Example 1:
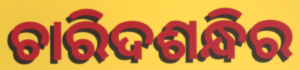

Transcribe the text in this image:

ଚାରିଦଶନ୍ଧିର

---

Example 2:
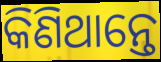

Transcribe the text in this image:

କିଣିଥାନ୍ତେ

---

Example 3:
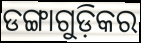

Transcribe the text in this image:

ଡଙ୍ଗାଗୁଡ଼ିକର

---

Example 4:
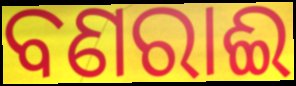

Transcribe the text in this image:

ବଣରାଈ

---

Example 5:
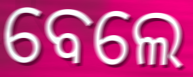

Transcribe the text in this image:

ବେଲେ